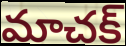
మాచక్